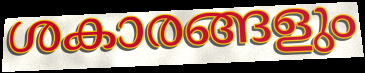
ശകാരങ്ങളും